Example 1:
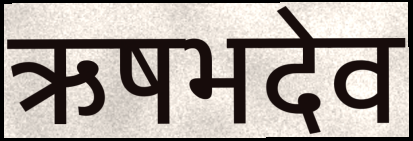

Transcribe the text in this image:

ऋषभदेव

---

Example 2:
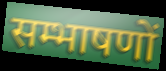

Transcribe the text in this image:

सम्भाषणों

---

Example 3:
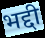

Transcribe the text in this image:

भद्दी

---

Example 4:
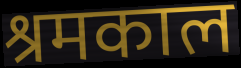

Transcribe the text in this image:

श्रमकाल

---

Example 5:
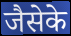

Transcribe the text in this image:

जैसेके